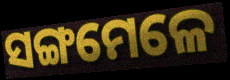
ସଙ୍ଗମେଳେ